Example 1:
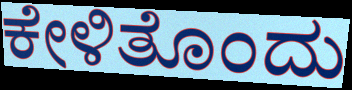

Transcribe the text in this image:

ಕೇಳಿತೊಂದು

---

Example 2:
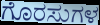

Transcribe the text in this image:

ಗೊರಸುಗಳ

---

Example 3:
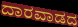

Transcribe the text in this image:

ದಾರವಾಡದ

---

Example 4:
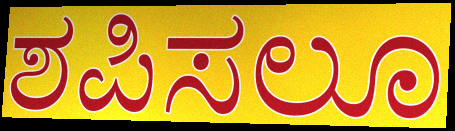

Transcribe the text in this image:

ಶಪಿಸಲೂ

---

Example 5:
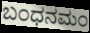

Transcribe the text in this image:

ಬಂಧನಮಂ